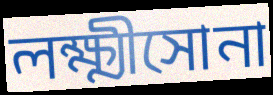
লক্ষ্মীসোনা